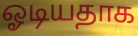
ஓடியதாக